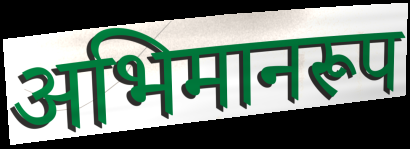
अभिमानरूप